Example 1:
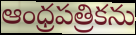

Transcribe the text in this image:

ఆంధ్రపత్రికను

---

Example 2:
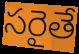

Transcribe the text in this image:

సరైతే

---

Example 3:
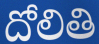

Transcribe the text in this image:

దోలితి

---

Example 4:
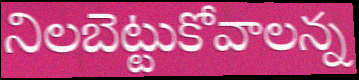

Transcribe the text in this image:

నిలబెట్టుకోవాలన్న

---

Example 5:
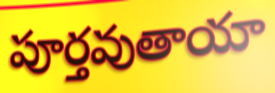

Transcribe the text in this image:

పూర్తవుతాయా